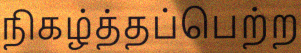
நிகழ்த்தப்பெற்ற